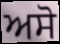
ਅਸੋ